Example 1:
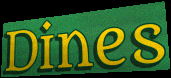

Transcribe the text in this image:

Dines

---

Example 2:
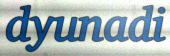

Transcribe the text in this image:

dyunadi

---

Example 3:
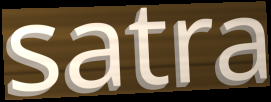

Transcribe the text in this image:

satra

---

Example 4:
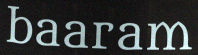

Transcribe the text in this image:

baaram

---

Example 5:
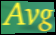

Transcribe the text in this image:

Avg